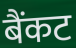
बैंकट